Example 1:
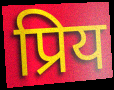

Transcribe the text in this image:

प्रिय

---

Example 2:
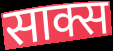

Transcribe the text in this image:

साक्स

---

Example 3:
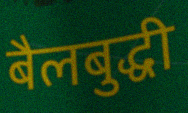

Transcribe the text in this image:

बैलबुद्धी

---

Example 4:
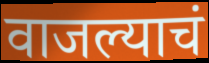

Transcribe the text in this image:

वाजल्याचं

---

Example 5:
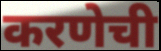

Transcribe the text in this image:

करणेची